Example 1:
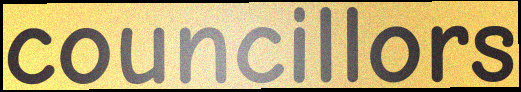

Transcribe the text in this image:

councillors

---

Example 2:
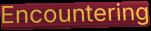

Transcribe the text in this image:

Encountering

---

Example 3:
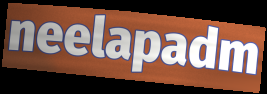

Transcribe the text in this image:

neelapadm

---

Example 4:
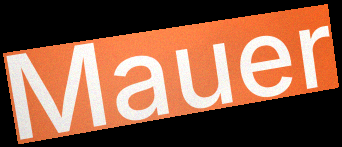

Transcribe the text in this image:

Mauer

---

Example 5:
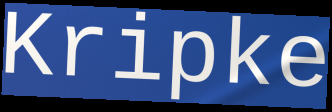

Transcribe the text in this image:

Kripke